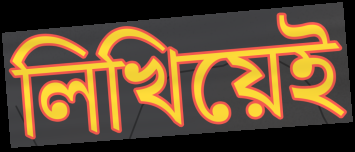
লিখিয়েই